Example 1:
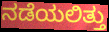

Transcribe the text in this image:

ನಡೆಯಲಿತ್ತು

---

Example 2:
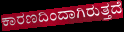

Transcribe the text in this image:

ಕಾರಣದಿಂದಾಗಿರುತ್ತದೆ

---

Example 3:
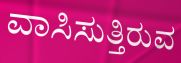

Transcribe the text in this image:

ವಾಸಿಸುತ್ತಿರುವ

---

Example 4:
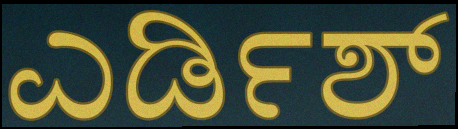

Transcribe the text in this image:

ಎರ್ಡಿಶ್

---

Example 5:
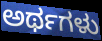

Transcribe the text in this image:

ಅರ್ಥಗಳು